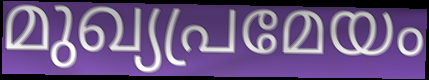
മുഖ്യപ്രമേയം